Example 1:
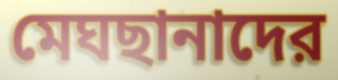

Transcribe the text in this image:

মেঘছানাদের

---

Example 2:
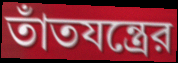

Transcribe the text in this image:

তাঁতযন্ত্রের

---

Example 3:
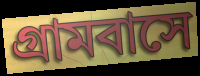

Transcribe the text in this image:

গ্রামবাসে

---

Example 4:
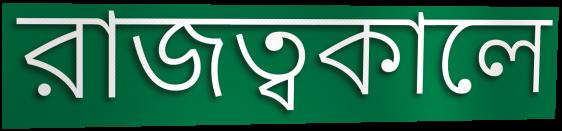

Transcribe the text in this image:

রাজত্বকালে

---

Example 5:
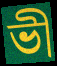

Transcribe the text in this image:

ভী